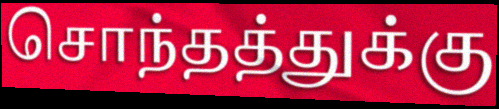
சொந்தத்துக்கு